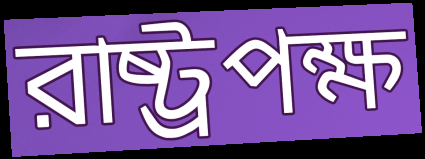
রাষ্ট্রপক্ষ